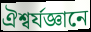
ঐশ্বর্যজ্ঞানে